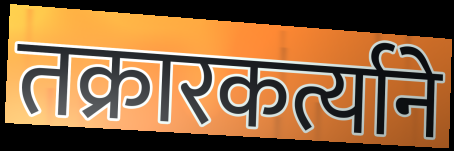
तक्रारकर्त्याने